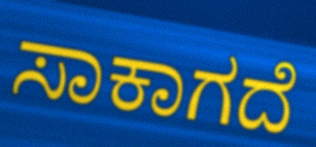
ಸಾಕಾಗದೆ